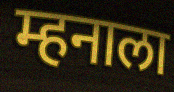
म्हनाला